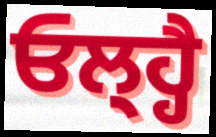
ਓਲ੍ਹ੍ਹੈ